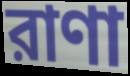
রাণা